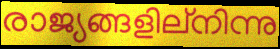
രാജ്യങ്ങളില്നിന്നു